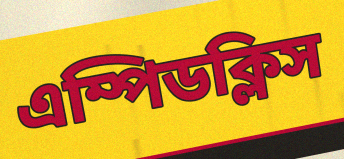
এম্পিডক্লিস